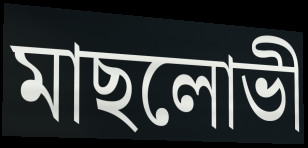
মাছলোভী